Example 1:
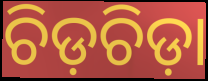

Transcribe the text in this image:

ଚିଡ଼ଚିଡ଼ା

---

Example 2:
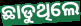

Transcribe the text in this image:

ଛାଡୁଥିଲେ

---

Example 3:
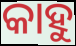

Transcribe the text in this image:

କାହୁ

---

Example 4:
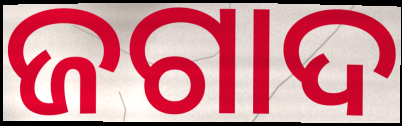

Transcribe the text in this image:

ଜଗାଦ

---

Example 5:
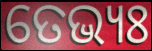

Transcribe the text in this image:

ତେଭ୍ୟଃ